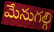
మేనుగల్గి